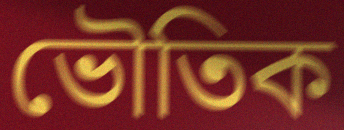
ভৌতিক